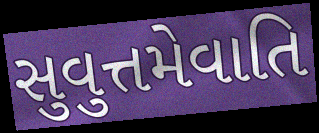
સુવુત્તમેવાતિ